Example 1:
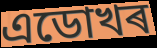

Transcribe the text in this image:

এডোখৰ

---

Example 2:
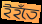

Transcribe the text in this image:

ইহঁতে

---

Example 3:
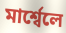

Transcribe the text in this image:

মাৰ্শ্বেলে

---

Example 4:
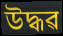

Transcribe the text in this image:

উদ্ধৱ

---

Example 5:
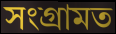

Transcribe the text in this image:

সংগ্ৰামত